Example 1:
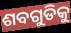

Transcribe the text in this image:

ଶବଗୁଡିକୁ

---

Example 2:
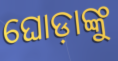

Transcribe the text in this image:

ଘୋଡ଼ାଙ୍କୁ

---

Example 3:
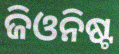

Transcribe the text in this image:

ଜିଓନିଷ୍ଟ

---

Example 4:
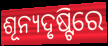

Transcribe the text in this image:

ଶୂନ୍ୟଦୃଷ୍ଟିରେ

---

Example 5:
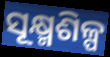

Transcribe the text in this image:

ସୂକ୍ଷ୍ମଶିଳ୍ପ